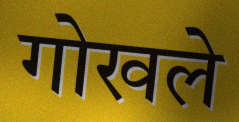
गोखले